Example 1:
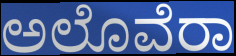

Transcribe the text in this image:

ಅಲೊವೆರಾ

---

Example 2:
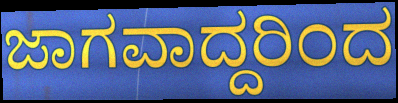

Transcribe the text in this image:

ಜಾಗವಾದ್ದರಿಂದ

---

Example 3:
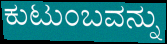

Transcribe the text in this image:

ಕುಟುಂಬವನ್ನು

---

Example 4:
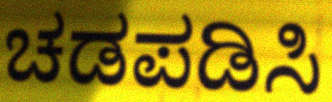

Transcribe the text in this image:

ಚಡಪಡಿಸಿ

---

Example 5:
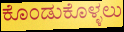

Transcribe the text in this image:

ಕೊಂಡುಕೊಳ್ಳಲು